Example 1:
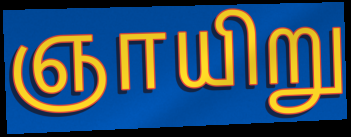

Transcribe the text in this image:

ஞாயிறு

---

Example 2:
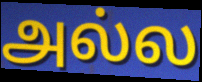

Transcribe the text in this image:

அல்ல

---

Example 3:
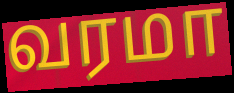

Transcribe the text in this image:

வரமா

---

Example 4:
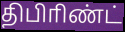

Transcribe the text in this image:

திபிரிண்ட்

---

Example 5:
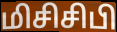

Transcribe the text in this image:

மிசிசிபி